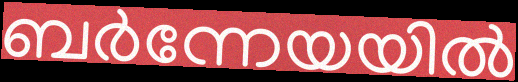
ബർന്നേയയിൽ